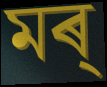
মৰ্